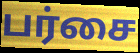
பர்சை